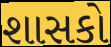
શાસકો